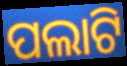
ପଲାଟି